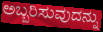
ಅಬ್ಬರಿಸುವುದನ್ನು